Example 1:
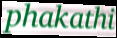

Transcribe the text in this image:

phakathi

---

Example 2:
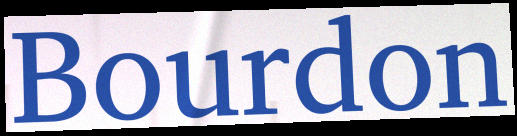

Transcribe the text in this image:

Bourdon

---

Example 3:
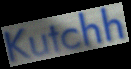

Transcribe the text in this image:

Kutchh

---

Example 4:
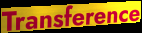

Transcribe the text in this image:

Transference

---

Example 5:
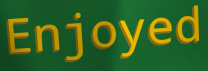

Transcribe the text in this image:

Enjoyed